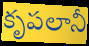
కృపలానీ